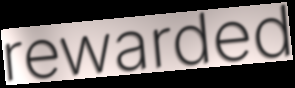
rewarded